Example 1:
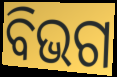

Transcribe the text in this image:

ବିଭଗ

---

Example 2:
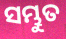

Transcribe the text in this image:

ସମ୍ଭୁତ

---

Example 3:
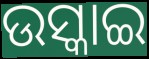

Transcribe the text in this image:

ଉସ୍କାଇ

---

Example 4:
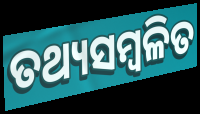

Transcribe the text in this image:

ତଥ୍ୟସମ୍ୱଳିତ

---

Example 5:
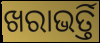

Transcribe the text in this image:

ଖରାଭର୍ତ୍ତି